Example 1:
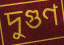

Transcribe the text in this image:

দুগুণ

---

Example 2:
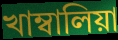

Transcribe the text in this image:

খাম্বালিয়া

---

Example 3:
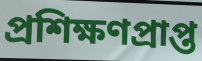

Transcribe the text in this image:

প্ৰশিক্ষণপ্ৰাপ্ত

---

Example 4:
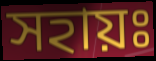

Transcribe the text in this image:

সহায়ঃ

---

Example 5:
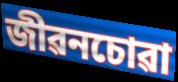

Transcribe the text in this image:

জীৱনচোৱা